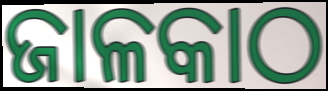
ଜାଳକାଠ